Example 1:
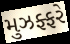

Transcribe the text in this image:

મુઝફ્ફરે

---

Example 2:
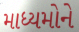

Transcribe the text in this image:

માધ્યમોને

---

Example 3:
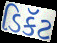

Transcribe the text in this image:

ડિકૅટ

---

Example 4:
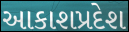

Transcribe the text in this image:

આકાશપ્રદેશ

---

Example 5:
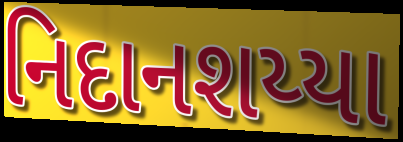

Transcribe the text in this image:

નિદાનશય્યા